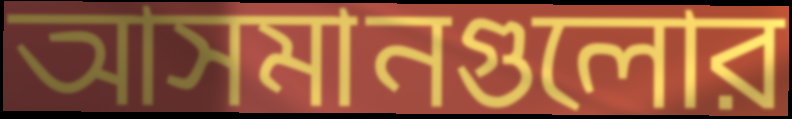
আসমানগুলোর